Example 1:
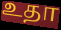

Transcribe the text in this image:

உதா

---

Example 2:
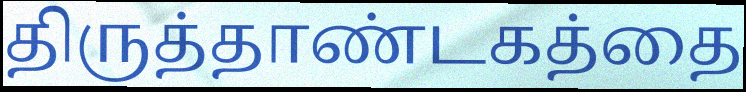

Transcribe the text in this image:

திருத்தாண்டகத்தை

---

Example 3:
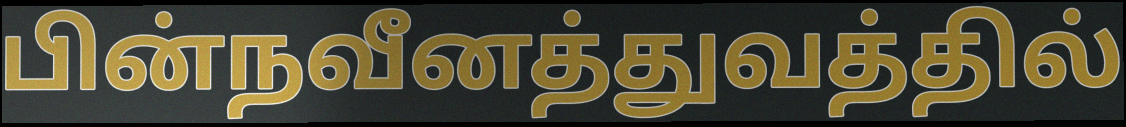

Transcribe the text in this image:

பின்நவீனத்துவத்தில்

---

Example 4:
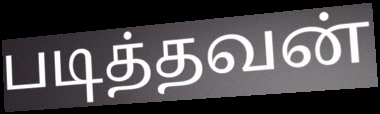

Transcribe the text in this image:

படித்தவன்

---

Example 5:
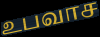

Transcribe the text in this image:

உபவாச